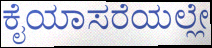
ಕೈಯಾಸರೆಯಲ್ಲೇ